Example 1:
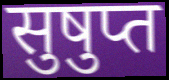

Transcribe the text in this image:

सुषुप्त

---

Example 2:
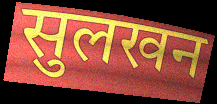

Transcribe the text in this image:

सुलखन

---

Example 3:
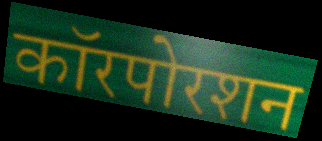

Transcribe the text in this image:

कॉरपोरशन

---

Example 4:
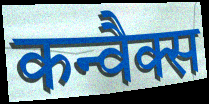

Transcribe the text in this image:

कन्वैक्स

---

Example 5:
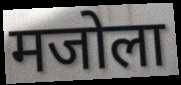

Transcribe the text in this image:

मजोला